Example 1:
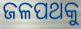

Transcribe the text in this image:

ଜଳପଥକୁ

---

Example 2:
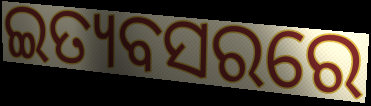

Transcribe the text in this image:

ଇତ୍ୟବସରରେ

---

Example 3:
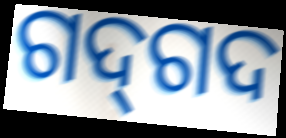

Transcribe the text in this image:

ଗଦ୍‍ଗଦ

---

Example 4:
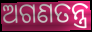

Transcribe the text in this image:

ଅଗଣତନ୍ତ୍ର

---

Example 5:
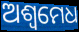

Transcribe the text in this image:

ଅଶ୍ବମେଧ